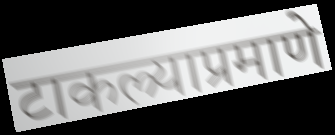
टाकल्याप्रमाणे